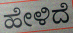
ಹೇಳಿದೆ